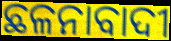
ଛଳନାବାଦୀ